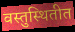
वस्तुस्थितीत